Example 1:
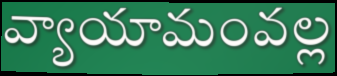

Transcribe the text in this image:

వ్యాయామంవల్ల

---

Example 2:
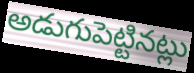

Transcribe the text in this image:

అడుగుపెట్టినట్లు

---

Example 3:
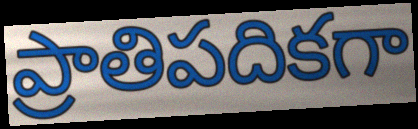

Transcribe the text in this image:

ప్రాతిపదికగా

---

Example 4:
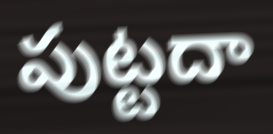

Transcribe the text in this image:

పుట్టదా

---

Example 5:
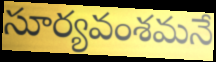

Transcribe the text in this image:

సూర్యవంశమనే